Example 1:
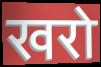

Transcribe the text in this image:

खरो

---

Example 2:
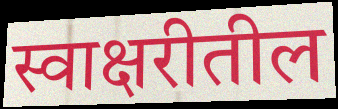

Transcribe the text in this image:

स्वाक्षरीतील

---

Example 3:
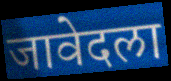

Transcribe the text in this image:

जावेदला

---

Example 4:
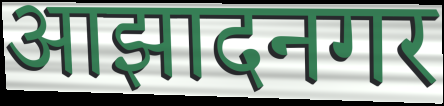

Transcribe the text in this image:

आझादनगर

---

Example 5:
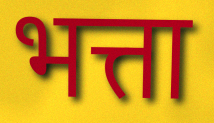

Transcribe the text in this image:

भत्ता